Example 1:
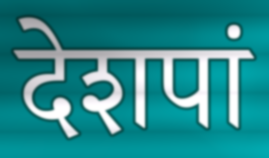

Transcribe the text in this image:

देशपां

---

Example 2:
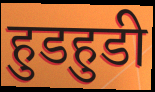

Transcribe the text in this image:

हुडहुडी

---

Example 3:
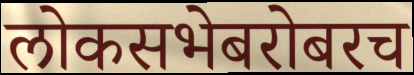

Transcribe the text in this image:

लोकसभेबरोबरच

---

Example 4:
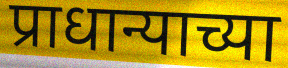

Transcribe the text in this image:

प्राधान्याच्या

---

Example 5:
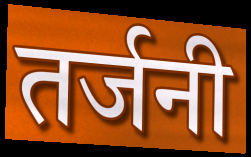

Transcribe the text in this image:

तर्जनी